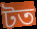
টত